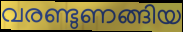
വരണ്ടുണങ്ങിയ